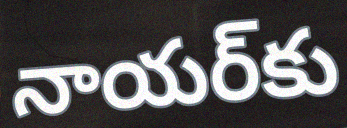
నాయర్‌కు